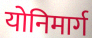
योनिमार्ग